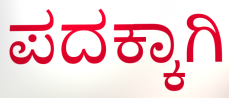
ಪದಕ್ಕಾಗಿ